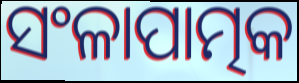
ସଂଳାପାତ୍ମକ